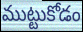
ముట్టుకోడం